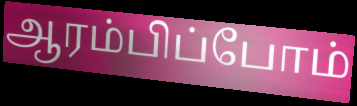
ஆரம்பிப்போம்